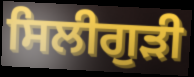
ਸਿਲੀਗੁੜੀ